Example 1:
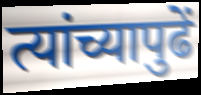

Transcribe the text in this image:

त्यांच्यापुढें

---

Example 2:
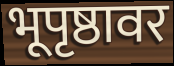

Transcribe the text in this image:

भूपृष्ठावर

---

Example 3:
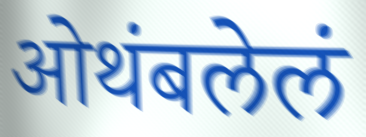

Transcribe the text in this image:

ओथंबलेलं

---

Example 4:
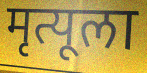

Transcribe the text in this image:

मृत्यूला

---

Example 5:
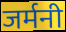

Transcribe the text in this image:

जर्मनी